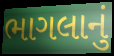
ભાગલાનું